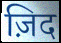
ज़िद